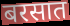
बरसात